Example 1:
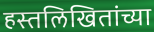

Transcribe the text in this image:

हस्तलिखितांच्या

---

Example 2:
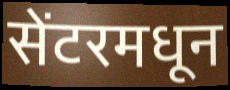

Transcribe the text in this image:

सेंटरमधून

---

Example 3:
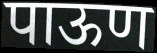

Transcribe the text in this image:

पाऊण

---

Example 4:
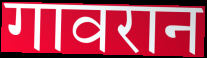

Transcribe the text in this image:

गावरान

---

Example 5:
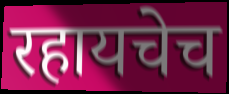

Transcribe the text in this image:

रहायचेच